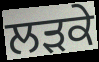
ਲਡ਼ਕੇ